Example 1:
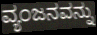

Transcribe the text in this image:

ವ್ಯಂಜನವನ್ನು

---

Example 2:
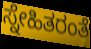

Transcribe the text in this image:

ಸ್ನೇಹಿತರಂತೆ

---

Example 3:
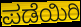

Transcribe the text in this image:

ಪಡೆಯಿರಿ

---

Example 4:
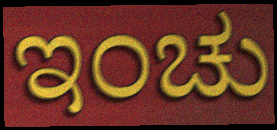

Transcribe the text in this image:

ಇಂಚು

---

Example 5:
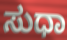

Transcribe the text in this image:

ಸುಧಾ